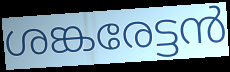
ശങ്കരേട്ടൻ